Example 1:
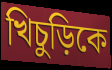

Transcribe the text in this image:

খিচুড়িকে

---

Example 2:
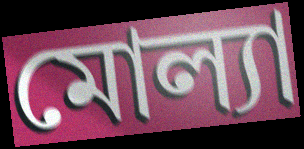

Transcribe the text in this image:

মোল্যা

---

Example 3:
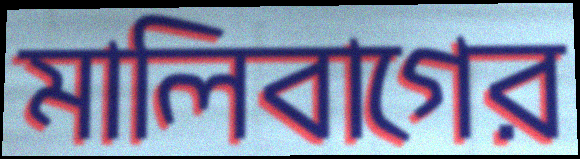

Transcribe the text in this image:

মালিবাগের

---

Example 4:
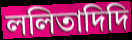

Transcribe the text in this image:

ললিতাদিদি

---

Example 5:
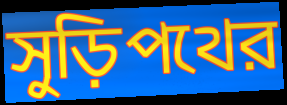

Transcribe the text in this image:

সুড়িপথের